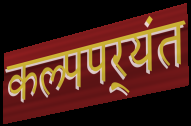
कल्पपर्यंत